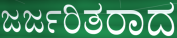
ಜರ್ಜರಿತರಾದ